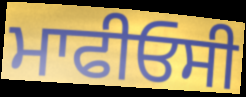
ਮਾਫੀਓਸੀ